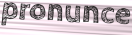
pronunce